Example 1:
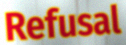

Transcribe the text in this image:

Refusal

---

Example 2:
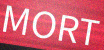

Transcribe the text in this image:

MORT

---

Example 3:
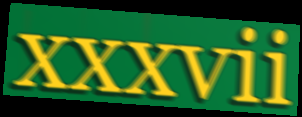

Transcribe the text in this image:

xxxvii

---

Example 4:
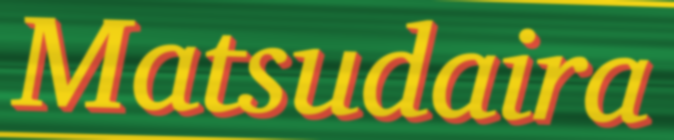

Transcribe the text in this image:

Matsudaira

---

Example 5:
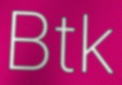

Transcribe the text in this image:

Btk